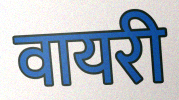
वायरी